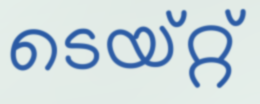
ടെയ്റ്റ്